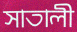
সাতালী